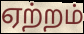
ஏற்றம்